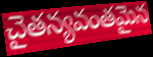
చైతన్యవంతమైన